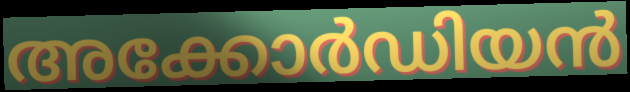
അക്കോർഡിയൻ